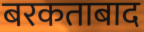
बरकताबाद